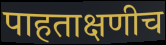
पाहताक्षणीच